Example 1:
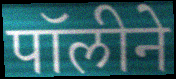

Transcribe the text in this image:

पॉलीने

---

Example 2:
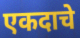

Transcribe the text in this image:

एकदाचे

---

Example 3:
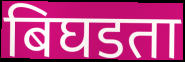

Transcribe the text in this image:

बिघडता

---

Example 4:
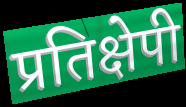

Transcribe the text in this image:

प्रतिक्षेपी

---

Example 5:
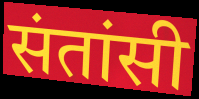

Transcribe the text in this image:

संतांसी